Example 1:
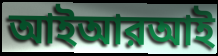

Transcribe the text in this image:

আইআরআই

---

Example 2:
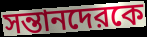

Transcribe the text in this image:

সন্তানদেরকে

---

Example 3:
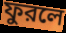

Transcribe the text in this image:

ফুরলে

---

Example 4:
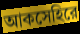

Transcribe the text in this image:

আকসেহিরে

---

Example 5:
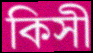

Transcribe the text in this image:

কিসী